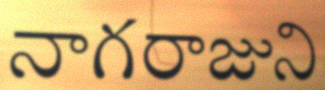
నాగరాజుని